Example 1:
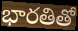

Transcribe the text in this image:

భారతితో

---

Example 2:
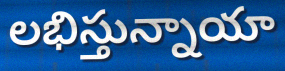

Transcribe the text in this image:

లభిస్తున్నాయా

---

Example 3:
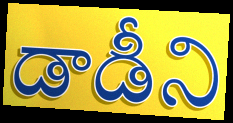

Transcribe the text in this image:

డాడీని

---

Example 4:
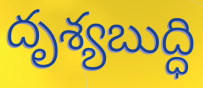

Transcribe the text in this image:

దృశ్యబుద్ధి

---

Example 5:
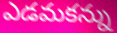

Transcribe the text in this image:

ఎడమకన్ను